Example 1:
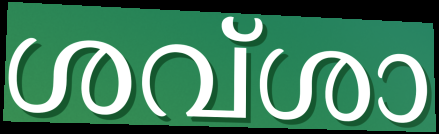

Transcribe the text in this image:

ശവ്ശാ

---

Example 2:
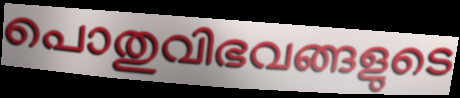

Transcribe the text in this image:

പൊതുവിഭവങ്ങളുടെ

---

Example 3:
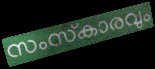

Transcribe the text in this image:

സംസ്‌കാരവും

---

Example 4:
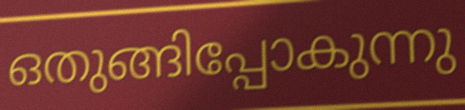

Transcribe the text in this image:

ഒതുങ്ങിപ്പോകുന്നു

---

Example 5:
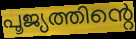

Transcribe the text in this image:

പൂജ്യത്തിന്റെ